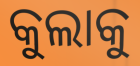
କୁଲାକୁ